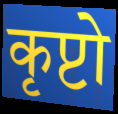
कृप्टो